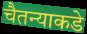
चैतन्याकडे